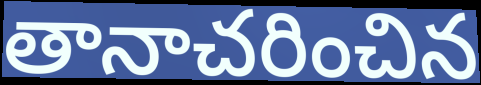
తానాచరించిన